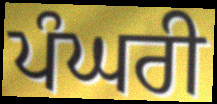
ਪੰਘਰੀ